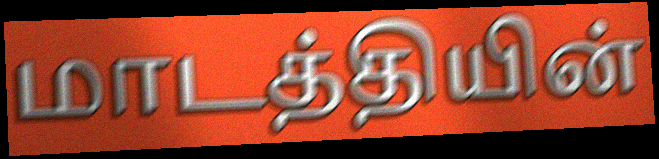
மாடத்தியின்